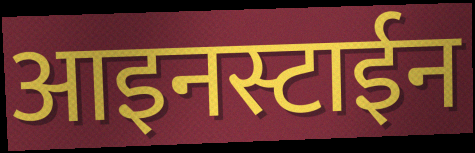
आइनस्टाईन